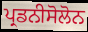
ਪ੍ਰਡਨੀਸੋਲੋਨ